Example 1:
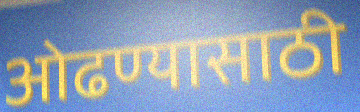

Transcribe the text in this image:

ओढण्यासाठी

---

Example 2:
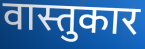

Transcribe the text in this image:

वास्तुकार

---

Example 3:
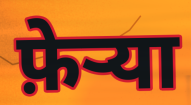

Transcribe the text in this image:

फ़ेर्‍या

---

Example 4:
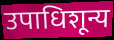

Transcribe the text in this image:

उपाधिशून्य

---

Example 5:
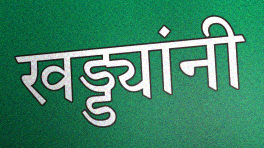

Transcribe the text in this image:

खड्ड्यांनी